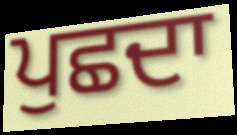
ਪੁਛਦਾ